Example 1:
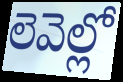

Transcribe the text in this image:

లెవెల్లో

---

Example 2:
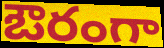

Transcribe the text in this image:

ఔరంగా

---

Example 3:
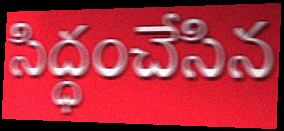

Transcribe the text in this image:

సిద్ధంచేసిన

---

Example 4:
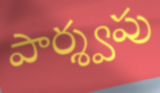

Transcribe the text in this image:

పార్శ్వపు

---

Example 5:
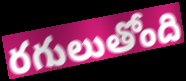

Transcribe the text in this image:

రగులుతోంది